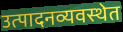
उत्पादनव्यवस्थेत